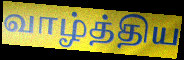
வாழ்த்திய